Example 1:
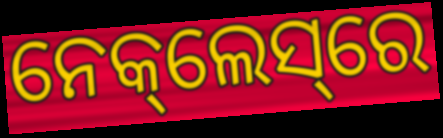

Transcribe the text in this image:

ନେକ୍‌ଲେସ୍‌ରେ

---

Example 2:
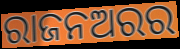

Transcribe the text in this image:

ରାଜନଅରର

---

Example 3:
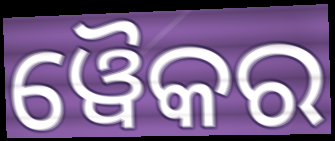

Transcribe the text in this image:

ୱୈକର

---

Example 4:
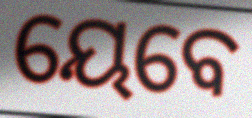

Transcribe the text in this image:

ୟେବେ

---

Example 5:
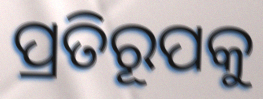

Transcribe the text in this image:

ପ୍ରତିରୂପକୁ